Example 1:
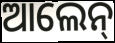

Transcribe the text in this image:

ଆଲେନ୍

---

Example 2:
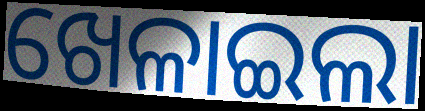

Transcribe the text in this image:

ଖେଳାଇଲା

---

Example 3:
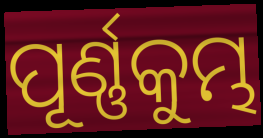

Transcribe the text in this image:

ପୂର୍ଣ୍ଣକୁମ୍ଭ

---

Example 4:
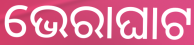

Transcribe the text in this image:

ଭେରାଘାଟ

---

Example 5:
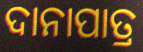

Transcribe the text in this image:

ଦାନାପାତ୍ର